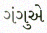
ગંગુએ